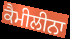
ਕੈਮੀਲੀਨਾ